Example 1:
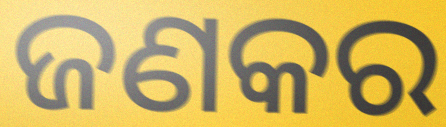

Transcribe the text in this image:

ଜଣକର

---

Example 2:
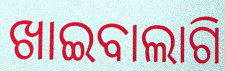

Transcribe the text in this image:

ଖାଇବାଲାଗି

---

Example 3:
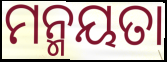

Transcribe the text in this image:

ମନ୍ମୟତା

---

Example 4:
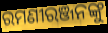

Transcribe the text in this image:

ରମଣୀରଞ୍ଜନଙ୍କୁ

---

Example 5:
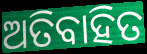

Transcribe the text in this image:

ଅତିବାହିତ